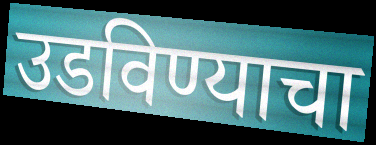
उडविण्याचा